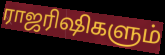
ராஜரிஷிகளும்